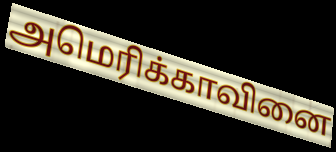
அமெரிக்காவினை